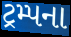
ટ્રમ્પના